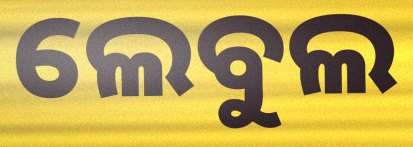
ଲେବୁଲ